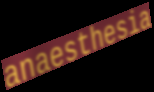
anaesthesia